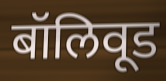
बॉलिवूड